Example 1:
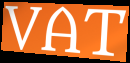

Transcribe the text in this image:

VAT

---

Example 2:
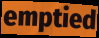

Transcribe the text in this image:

emptied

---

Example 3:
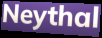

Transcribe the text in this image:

Neythal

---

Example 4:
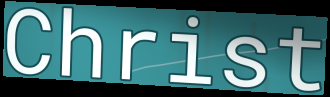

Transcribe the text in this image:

Christ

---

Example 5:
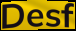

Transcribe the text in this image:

Desf